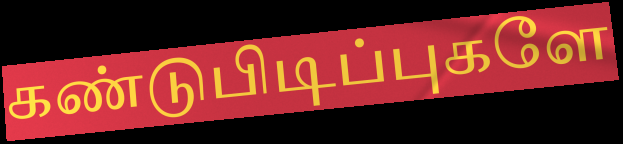
கண்டுபிடிப்புகளே